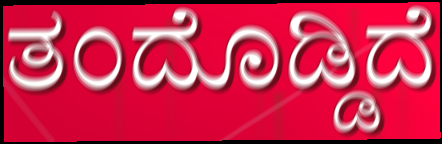
ತಂದೊಡ್ಡಿದೆ